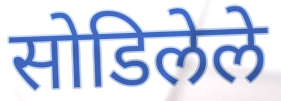
सोडिलेले